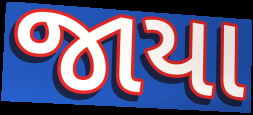
જાયા